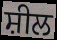
ਸ਼ੀਲ